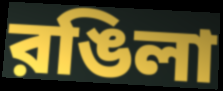
রঙিলা